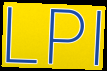
LPI